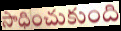
సాధించుకుంది